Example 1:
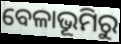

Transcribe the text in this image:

ବେଳାଭୂମିରୁ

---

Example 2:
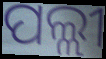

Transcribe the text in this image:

ପଲ୍ଲୀ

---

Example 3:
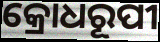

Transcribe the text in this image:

କ୍ରୋଧରୂପୀ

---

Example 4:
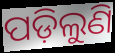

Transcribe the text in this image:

ପଡ଼ିଲୁଣି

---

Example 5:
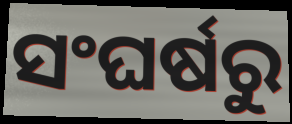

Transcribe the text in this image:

ସଂଘର୍ଷରୁ